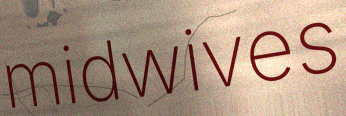
midwives